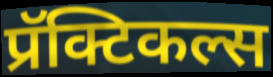
प्रॅक्टिकल्स